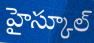
హైస్కూల్